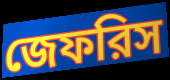
জেফরিস